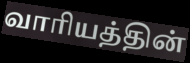
வாரியத்தின்